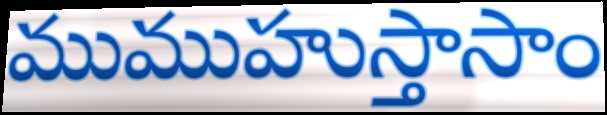
ముముహుస్తాసాం